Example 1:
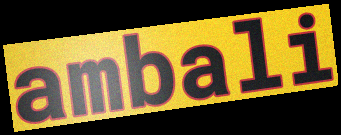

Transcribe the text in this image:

ambali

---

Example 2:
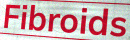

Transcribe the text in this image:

Fibroids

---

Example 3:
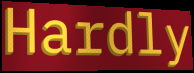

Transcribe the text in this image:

Hardly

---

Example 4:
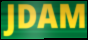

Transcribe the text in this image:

JDAM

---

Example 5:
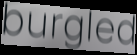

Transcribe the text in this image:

burgled